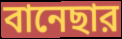
বানেছার